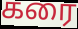
கரை